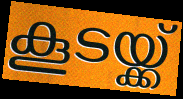
കൂടയ്ക്ക്